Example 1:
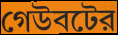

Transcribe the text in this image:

গেউবটের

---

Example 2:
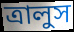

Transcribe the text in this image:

ত্রালুস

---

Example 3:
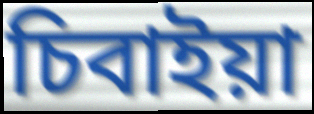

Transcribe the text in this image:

চিবাইয়া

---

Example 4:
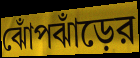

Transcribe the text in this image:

ঝোঁপঝাঁড়ের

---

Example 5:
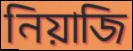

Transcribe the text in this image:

নিয়াজি